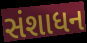
સંશાધન